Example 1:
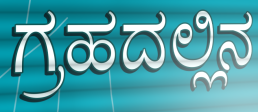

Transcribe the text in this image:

ಗ್ರಹದಲ್ಲಿನ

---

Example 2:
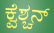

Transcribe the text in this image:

ಕ್ವೆಶ್ಚನ್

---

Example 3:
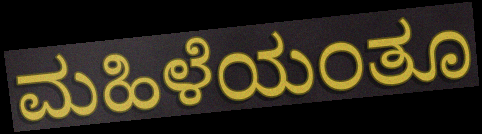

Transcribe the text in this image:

ಮಹಿಳೆಯಂತೂ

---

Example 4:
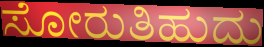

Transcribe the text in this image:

ಸೋರುತಿಹುದು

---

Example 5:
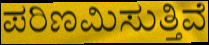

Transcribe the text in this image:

ಪರಿಣಮಿಸುತ್ತಿವೆ